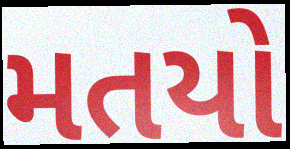
મતયો